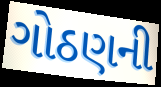
ગોઠણની